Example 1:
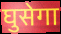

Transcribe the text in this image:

घुसेगा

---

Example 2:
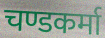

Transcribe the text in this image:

चण्डकर्मा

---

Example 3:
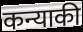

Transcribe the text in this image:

कन्याकी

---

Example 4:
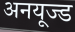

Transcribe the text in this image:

अनयूज्ड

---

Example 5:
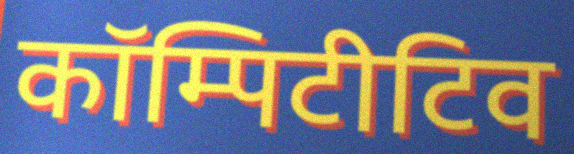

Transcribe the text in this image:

कॉम्पिटीटिव